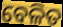
ବେଳିତ